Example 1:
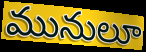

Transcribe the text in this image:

మునులూ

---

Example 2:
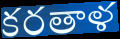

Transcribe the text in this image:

కరతాళ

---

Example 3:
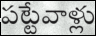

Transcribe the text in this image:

పట్టేవాళ్లు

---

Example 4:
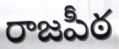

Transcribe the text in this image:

రాజపీఠ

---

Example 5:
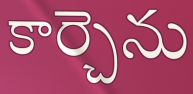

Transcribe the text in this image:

కార్చెను